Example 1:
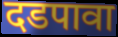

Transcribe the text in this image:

दडपावा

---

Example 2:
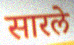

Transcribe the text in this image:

सारले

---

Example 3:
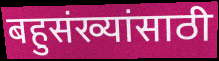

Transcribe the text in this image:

बहुसंख्यांसाठी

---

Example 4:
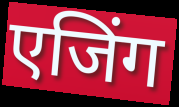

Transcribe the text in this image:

एजिंग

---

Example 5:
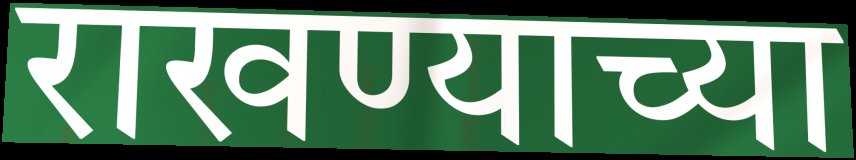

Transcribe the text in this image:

राखण्याच्या